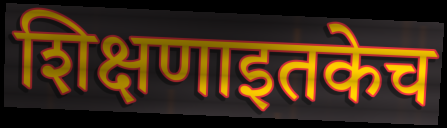
शिक्षणाइतकेच